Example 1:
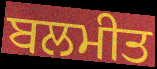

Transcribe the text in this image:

ਬਲਮੀਤ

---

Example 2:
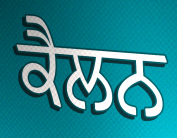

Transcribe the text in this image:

ਕੈਲਨ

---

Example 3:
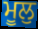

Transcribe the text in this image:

ਮੂਲੁ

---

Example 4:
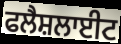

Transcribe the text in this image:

ਫਲੈਸ਼ਲਾਈਟ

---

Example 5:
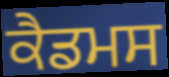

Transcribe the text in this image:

ਕੈਡਮਸ